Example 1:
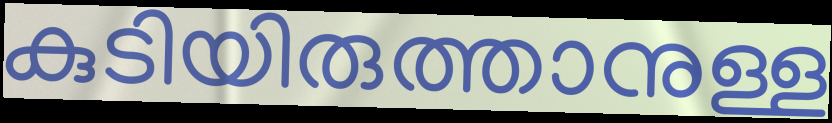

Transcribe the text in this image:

കുടിയിരുത്താനുള്ള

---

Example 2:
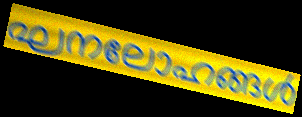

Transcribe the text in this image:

ഘനലോഹങ്ങൾ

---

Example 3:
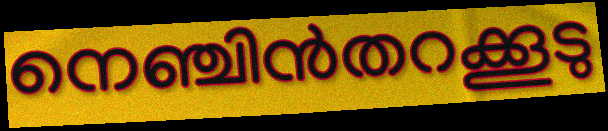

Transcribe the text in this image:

നെഞ്ചിൻതറക്കൂടു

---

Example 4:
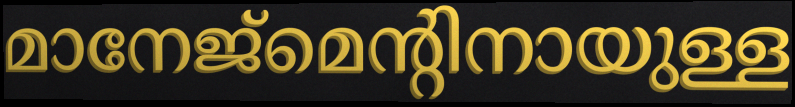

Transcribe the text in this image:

മാനേജ്മെന്റിനായുള്ള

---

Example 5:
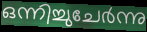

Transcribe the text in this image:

ഒന്നിച്ചുചേർന്നു